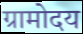
ग्रामोदय